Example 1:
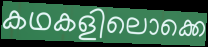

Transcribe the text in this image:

കഥകളിലൊക്കെ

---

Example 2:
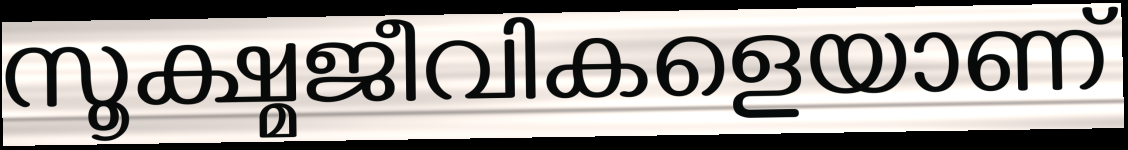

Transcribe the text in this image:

സൂക്ഷ്മജീവികളെയാണ്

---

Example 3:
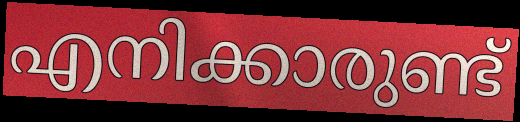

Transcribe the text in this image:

എനിക്കാരുണ്ട്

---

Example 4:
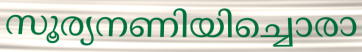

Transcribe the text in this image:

സൂര്യനണിയിച്ചൊരാ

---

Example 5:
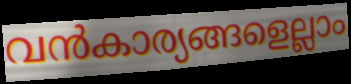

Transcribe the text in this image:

വൻകാര്യങ്ങളെല്ലാം